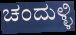
ಚಂದುಳ್ಳಿ